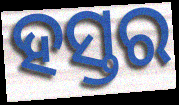
ହସ୍ତର